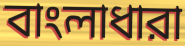
বাংলাধারা